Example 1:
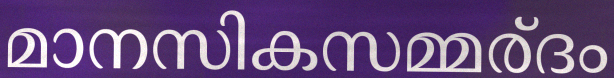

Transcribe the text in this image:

മാനസികസമ്മര്ദം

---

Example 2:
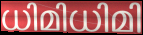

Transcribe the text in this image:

ധിമിധിമി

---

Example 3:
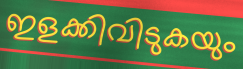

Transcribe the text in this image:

ഇളക്കിവിടുകയും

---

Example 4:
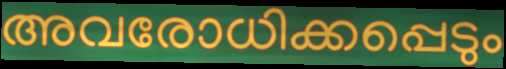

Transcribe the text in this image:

അവരോധിക്കപ്പെടും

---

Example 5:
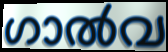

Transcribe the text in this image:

ഗാൽവ